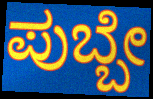
ಪುಬ್ಬೇ